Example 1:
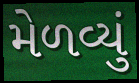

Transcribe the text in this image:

મેળવ્યું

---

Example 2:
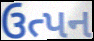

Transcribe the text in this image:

ઉત્પન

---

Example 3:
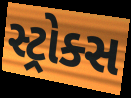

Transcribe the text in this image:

સ્ટ્રોક્સ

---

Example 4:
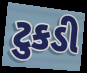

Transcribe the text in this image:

ટુકડી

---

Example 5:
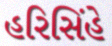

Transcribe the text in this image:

હરિસિંહે